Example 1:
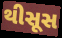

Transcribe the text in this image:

થીસૂસ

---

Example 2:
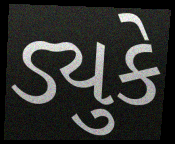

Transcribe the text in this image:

ડ્યુકે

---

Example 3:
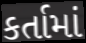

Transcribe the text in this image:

કર્તામાં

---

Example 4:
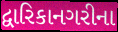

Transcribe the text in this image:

દ્વારિકાનગરીના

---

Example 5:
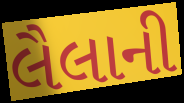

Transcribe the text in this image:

લૈલાની